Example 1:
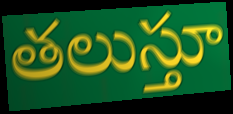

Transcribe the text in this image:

తలుస్తూ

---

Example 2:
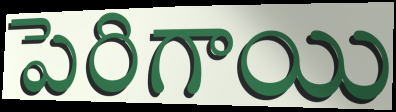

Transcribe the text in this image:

పెరిగాయి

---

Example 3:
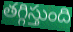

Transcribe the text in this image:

తగ్గిస్తుంది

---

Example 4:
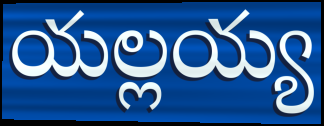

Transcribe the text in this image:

యల్లయ్య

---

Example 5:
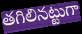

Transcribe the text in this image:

తగిలినట్టుగా